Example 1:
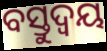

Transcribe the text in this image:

ବସ୍ତୁଦ୍ୱୟ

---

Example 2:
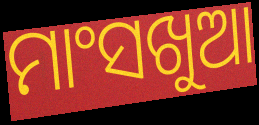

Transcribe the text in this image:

ମାଂସଖୁଆ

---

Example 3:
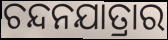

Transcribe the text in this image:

ଚନ୍ଦନଯାତ୍ରାର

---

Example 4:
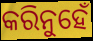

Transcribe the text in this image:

କରିନୁହେଁ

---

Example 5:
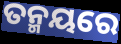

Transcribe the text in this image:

ତନ୍ମୟରେ